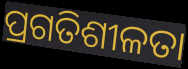
ପ୍ରଗତିଶୀଳତା